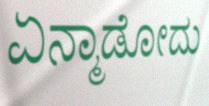
ಏನ್ಮಾಡೋದು